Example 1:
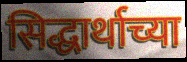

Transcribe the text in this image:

सिद्धार्थाच्या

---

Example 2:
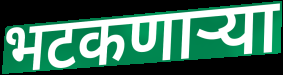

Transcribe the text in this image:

भटकणार्‍या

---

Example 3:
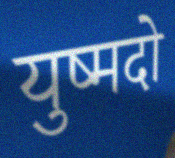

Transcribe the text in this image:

युष्मदो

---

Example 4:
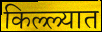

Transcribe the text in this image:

किल्ल्यात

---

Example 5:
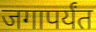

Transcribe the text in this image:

जगापर्यंत